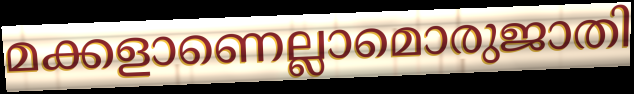
മക്കളാണെല്ലാമൊരുജാതി